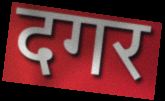
दगर